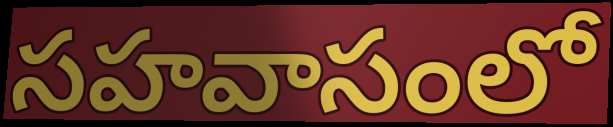
సహవాసంలో